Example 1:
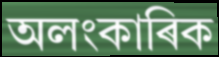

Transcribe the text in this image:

অলংকাৰিক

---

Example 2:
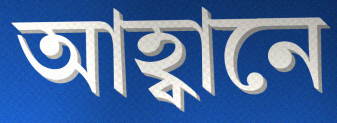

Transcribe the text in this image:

আহ্বানে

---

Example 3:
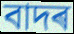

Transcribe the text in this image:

বাদৰ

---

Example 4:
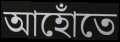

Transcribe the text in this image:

আহোঁতে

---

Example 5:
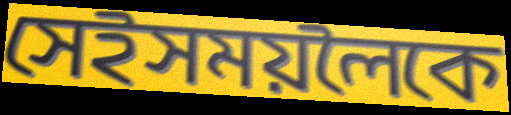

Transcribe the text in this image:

সেইসময়লৈকে